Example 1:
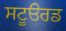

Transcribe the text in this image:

ਸਟੂੳਰਡ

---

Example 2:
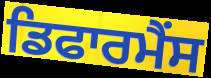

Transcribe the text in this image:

ਡਿਫਾਰਮੈਂਸ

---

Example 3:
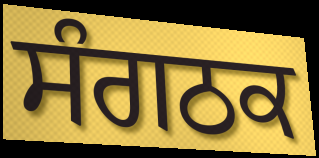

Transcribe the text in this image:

ਸੰਗਠਕ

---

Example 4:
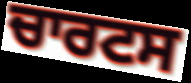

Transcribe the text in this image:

ਚਾਰਟਸ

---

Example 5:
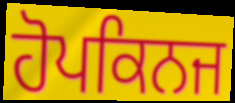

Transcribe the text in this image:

ਹੋਪਕਿਨਜ